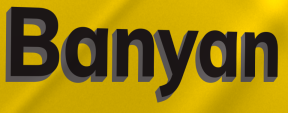
Banyan